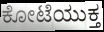
ಕೋಟೆಯುಕ್ತ